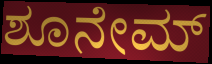
ಶೂನೇಮ್